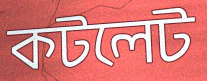
কটলেট